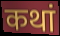
कथां